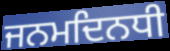
ਜਨਮਦਿਨਧੀ